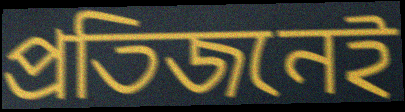
প্ৰতিজনেই